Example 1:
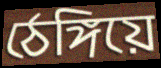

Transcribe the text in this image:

ঠেঙ্গিয়ে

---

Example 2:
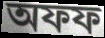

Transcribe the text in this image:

অফফ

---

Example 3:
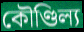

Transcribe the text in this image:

কৌণ্ডিল্য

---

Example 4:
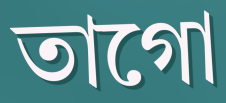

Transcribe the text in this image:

তাগো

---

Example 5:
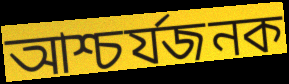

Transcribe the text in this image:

আশ্চর্যজনক